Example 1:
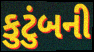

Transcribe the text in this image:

કુટુંબની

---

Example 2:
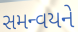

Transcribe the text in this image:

સમન્વયને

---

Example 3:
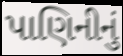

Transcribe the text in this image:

પાણિનીનું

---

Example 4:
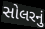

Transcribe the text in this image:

સોલરનું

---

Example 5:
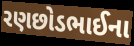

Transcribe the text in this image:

રણછોડભાઈના